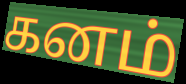
கனம்